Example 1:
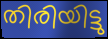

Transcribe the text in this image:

തിരിയിട്ടു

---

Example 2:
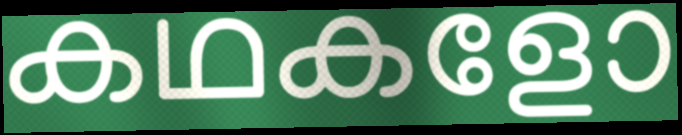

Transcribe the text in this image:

കഥകളോ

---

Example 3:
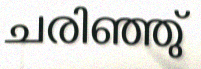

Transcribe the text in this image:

ചരിഞ്ഞു്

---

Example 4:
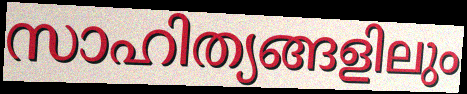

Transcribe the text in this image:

സാഹിത്യങ്ങളിലും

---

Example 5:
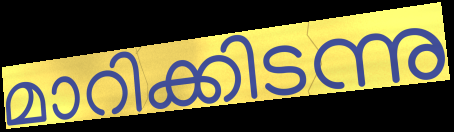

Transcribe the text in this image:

മാറിക്കിടന്നു